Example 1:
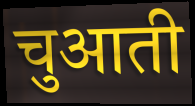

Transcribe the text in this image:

चुआती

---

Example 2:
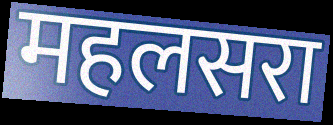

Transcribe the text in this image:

महलसरा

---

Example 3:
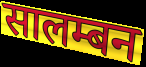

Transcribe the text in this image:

सालम्बन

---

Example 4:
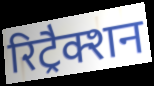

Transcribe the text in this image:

रिट्रैक्शन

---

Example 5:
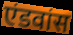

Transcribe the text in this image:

एंडवांस